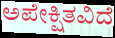
ಅಪೇಕ್ಷಿತವಿದೆ